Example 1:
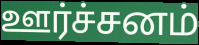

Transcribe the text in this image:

ஊர்ச்சனம்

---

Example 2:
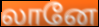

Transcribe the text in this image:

லானே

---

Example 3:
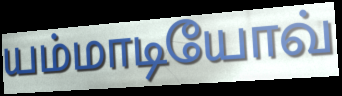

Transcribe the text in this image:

யம்மாடியோவ்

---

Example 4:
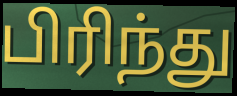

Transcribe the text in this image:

பிரிந்து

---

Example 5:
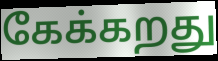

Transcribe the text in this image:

கேக்கறது